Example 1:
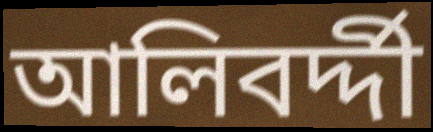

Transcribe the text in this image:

আলিবর্দ্দী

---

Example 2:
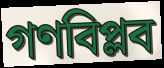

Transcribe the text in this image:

গণবিপ্লব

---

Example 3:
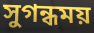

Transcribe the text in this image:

সুগন্ধময়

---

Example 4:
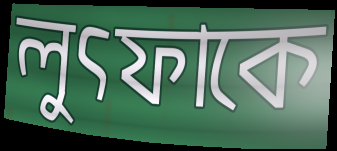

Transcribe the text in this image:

লুৎফাকে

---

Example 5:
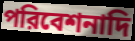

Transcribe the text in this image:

পরিবেশনাদি